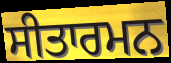
ਸੀਤਾਰਮਨ